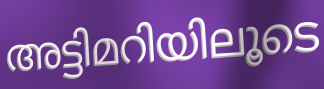
അട്ടിമറിയിലൂടെ